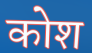
कोश